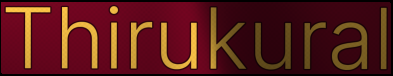
Thirukural